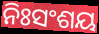
ନିଃସଂଶୟ